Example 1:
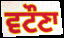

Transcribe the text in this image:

ਵਟੌਣਾ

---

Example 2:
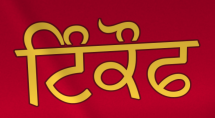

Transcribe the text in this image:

ਟਿੰਕੌਫ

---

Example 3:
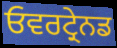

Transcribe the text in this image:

ਓਵਰਟ੍ਰੇਨਡ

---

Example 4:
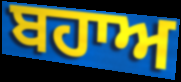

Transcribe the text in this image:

ਬਹਾਅ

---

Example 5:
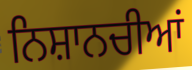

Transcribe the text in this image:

ਨਿਸ਼ਾਨਚੀਆਂ